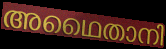
അഥൈതാനി